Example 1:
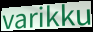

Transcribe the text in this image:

varikku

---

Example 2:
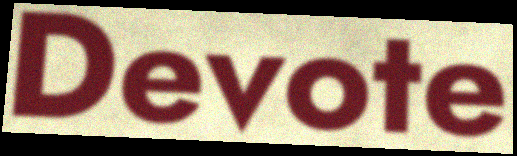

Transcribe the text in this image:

Devote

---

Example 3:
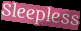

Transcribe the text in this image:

Sleepless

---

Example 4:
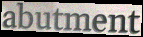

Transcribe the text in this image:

abutment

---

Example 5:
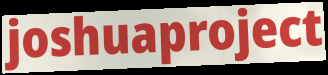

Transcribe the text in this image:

joshuaproject